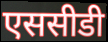
एससीडी